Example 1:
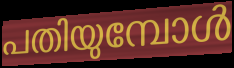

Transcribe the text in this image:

പതിയുമ്പോൾ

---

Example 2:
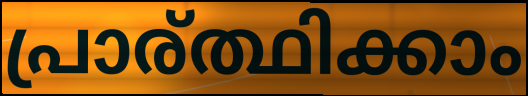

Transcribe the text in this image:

പ്രാര്ത്ഥിക്കാം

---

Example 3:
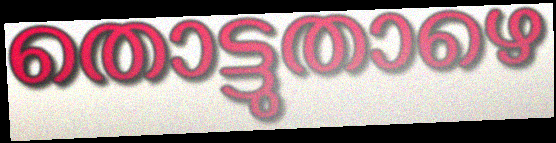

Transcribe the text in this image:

തൊട്ടുതാഴെ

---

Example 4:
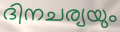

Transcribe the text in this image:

ദിനചര്യയും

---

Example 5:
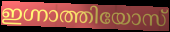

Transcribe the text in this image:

ഇഗ്നാത്തിയോസ്